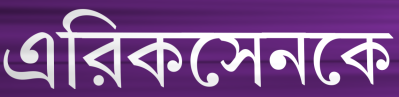
এরিকসেনকে